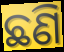
ଛଣି